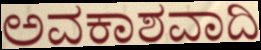
ಅವಕಾಶವಾದಿ